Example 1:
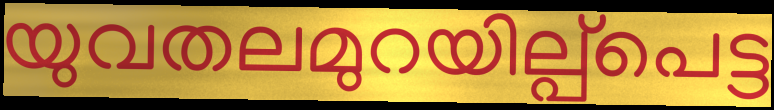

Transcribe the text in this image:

യുവതലമുറയില്പ്പെട്ട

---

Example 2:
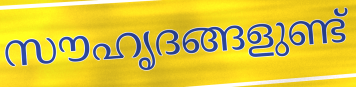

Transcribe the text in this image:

സൗഹൃദങ്ങളുണ്ട്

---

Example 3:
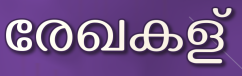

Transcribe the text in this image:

രേഖകള്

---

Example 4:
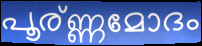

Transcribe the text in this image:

പൂര്ണ്ണമോദം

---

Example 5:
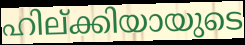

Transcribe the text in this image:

ഹില്ക്കിയായുടെ